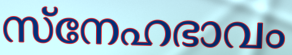
സ്നേഹഭാവം